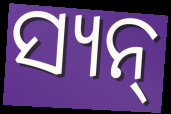
ସ୍ୟନ୍